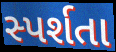
સ્પર્શતા